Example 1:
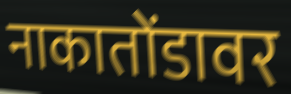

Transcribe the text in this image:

नाकातोंडावर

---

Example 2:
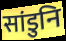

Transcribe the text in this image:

सांडुनि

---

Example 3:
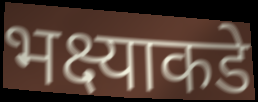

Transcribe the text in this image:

भक्ष्याकडे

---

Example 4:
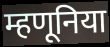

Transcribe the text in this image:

म्हणूनिया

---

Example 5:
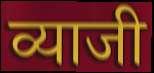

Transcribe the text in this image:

व्याजी